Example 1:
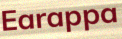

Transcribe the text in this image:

Earappa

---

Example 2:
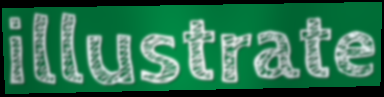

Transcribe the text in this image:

illustrate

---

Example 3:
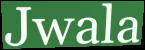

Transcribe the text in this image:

Jwala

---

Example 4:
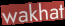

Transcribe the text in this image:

wakhat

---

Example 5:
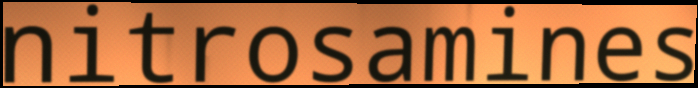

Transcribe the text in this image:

nitrosamines